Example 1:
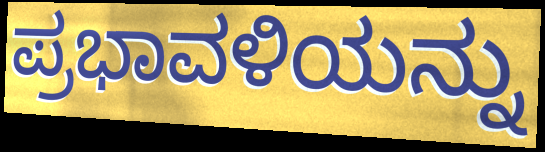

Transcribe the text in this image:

ಪ್ರಭಾವಳಿಯನ್ನು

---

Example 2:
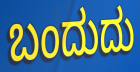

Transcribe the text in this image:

ಬಂದುದು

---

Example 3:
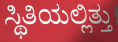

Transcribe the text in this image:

ಸ್ಥಿತಿಯಲ್ಲಿತ್ತು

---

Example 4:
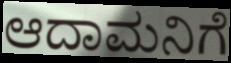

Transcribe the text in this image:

ಆದಾಮನಿಗೆ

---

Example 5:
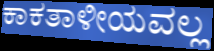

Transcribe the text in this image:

ಕಾಕತಾಳೀಯವಲ್ಲ